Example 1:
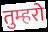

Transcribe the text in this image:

तुम्हरो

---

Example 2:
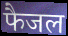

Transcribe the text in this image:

फैजल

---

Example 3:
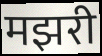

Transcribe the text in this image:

मझरी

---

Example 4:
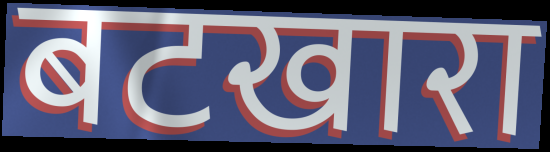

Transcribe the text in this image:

बटखारा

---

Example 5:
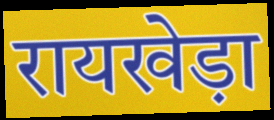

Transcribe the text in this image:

रायखेड़ा